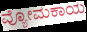
ವ್ಯೋಮಕಾಯ